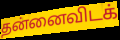
தன்னைவிடக்